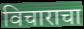
विचाराचा